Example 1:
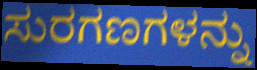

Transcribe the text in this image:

ಸುರಗಣಗಳನ್ನು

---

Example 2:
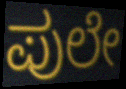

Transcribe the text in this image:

ಪುಲೇ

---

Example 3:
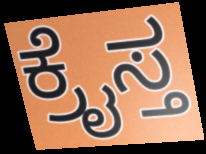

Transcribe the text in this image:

ಕ್ರೈಸ್ತ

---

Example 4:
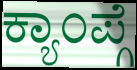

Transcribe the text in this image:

ಕ್ಯಾಂಪ್ಗೆ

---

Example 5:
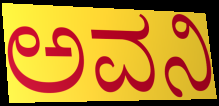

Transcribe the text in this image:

ಅವನಿ